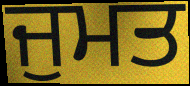
ਜੁਮਤ